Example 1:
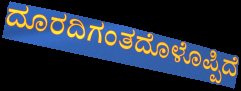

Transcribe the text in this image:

ದೂರದಿಗಂತದೊಳೊಪ್ಪಿದೆ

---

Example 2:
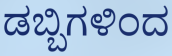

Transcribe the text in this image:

ಡಬ್ಬಿಗಳಿಂದ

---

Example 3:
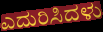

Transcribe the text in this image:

ಎದುರಿಸಿದಳು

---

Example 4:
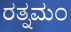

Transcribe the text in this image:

ರತ್ನಮಂ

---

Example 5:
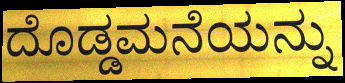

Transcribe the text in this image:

ದೊಡ್ಡಮನೆಯನ್ನು